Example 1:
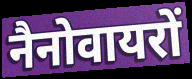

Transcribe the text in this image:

नैनोवायरों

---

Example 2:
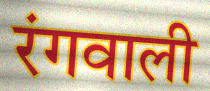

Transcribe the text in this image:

रंगवाली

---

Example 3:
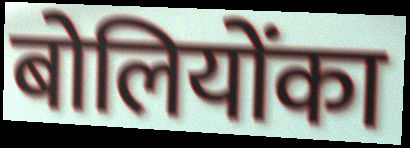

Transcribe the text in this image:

बोलियोंका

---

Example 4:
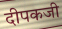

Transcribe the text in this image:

दीपकजी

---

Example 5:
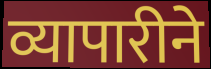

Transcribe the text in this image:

व्यापारीने